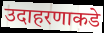
उदाहरणाकडे